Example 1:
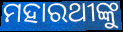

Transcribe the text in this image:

ମହାରଥୀଙ୍କୁ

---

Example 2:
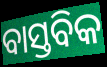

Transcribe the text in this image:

ବାସ୍ତବିକ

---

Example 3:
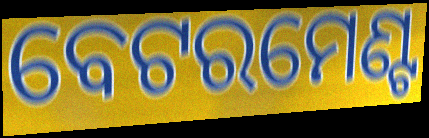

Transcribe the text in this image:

ବେଟରମେଣ୍ଟ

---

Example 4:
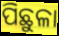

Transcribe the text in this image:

ପିଛୁଳା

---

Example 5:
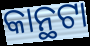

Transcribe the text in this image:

କାନ୍ଥଟା